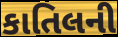
કાતિલની